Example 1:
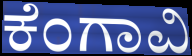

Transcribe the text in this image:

ಕೆಂಗಾವಿ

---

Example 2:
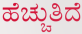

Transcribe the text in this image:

ಹೆಚ್ಚುತಿದೆ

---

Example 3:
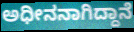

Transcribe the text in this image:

ಅಧೀನನಾಗಿದ್ದಾನೆ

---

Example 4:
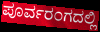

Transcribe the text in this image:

ಪೂರ್ವರಂಗದಲ್ಲಿ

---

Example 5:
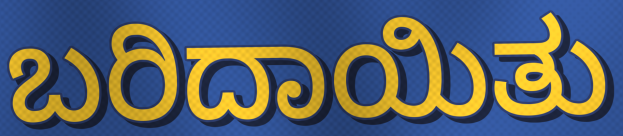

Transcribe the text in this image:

ಬರಿದಾಯಿತು